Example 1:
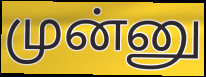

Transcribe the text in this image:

முன்னு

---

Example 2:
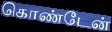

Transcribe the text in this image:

கொண்டேன்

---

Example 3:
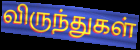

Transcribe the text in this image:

விருந்துகள்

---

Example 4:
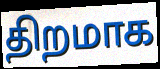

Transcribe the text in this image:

திறமாக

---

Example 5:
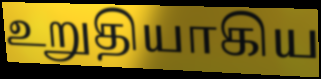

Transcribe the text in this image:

உறுதியாகிய